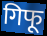
गिफू